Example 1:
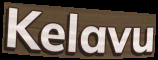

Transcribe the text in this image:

Kelavu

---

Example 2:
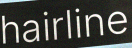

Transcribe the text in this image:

hairline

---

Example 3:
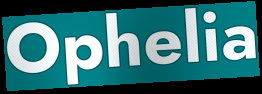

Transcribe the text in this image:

Ophelia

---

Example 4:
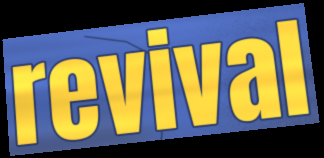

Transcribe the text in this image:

revival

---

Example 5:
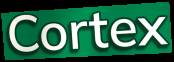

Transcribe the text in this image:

Cortex